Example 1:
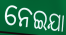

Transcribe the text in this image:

ନେଇଯା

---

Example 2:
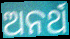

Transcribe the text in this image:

ଅନର୍ଥ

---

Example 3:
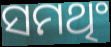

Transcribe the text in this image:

ସମଥିଂ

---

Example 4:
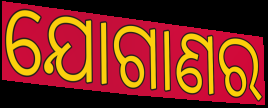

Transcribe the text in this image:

ଯୋଗାଣର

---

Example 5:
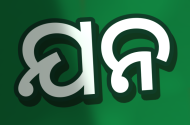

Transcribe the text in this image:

ଯନ